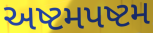
અષ્ટમપષ્ટમ